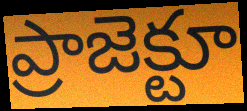
ప్రాజెక్టూ